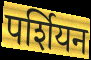
पर्शियन